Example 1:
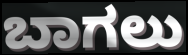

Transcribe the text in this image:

ಬಾಗಲು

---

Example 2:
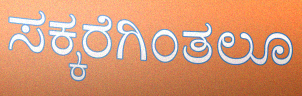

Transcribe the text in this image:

ಸಕ್ಕರೆಗಿಂತಲೂ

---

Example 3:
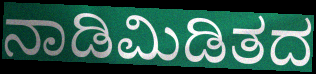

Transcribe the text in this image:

ನಾಡಿಮಿಡಿತದ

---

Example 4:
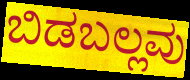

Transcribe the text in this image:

ಬಿಡಬಲ್ಲವು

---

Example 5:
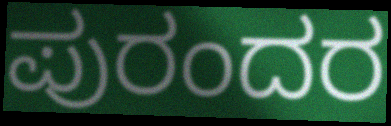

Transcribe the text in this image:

ಪುರಂದರ